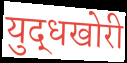
युद्धखोरी